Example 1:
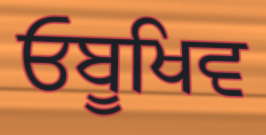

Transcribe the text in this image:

ਓਬੂਖਿਵ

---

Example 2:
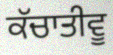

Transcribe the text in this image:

ਕੱਚਾਤੀਵੂ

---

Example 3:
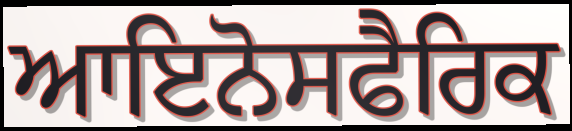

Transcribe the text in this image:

ਆਇਨੋਸਫੈਰਿਕ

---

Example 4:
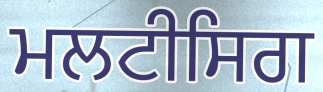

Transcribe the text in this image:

ਮਲਟੀਸਿਗ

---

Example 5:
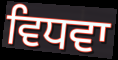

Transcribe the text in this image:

ਵਿਧਵਾ